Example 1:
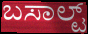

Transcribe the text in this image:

ಬಸಾಲ್ಟ್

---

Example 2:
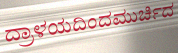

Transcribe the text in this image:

ದ್ರಾಳಯದಿಂದಮುರ್ಚಿದ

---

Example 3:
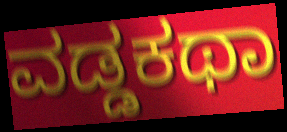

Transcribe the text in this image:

ವಡ್ಡಕಥಾ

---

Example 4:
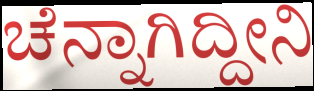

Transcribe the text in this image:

ಚೆನ್ನಾಗಿದ್ದೀನಿ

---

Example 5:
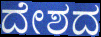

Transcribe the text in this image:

ದೇಶದ